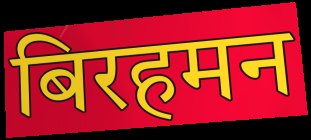
बिरहमन